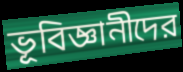
ভূবিজ্ঞানীদের